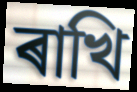
ৰাখি